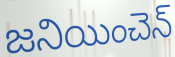
జనియించెన్